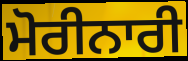
ਮੋਰੀਨਾਰੀ